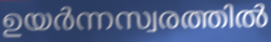
ഉയർന്നസ്വരത്തിൽ